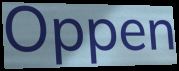
Oppen